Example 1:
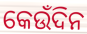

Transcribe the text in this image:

କେଉଁଦିନ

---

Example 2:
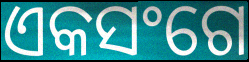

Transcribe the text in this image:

ଏକସଂଗେ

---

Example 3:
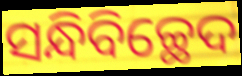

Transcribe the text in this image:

ସନ୍ଧିବିଚ୍ଛେଦ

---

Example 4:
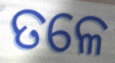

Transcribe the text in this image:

ତଳେ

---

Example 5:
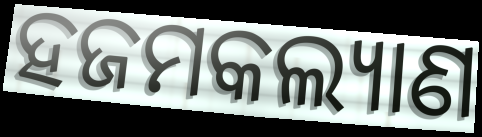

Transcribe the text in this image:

ହଜମକଲ୍ୟାଣ